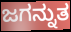
ಜಗನ್ನುತ